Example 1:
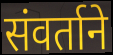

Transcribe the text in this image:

संवर्ताने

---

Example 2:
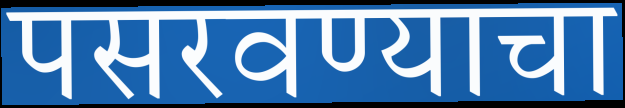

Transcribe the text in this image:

पसरवण्याचा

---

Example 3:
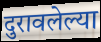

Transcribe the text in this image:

दुरावलेल्या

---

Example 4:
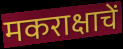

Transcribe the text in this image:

मकराक्षाचें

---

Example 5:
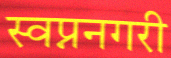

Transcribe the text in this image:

स्वप्ननगरी